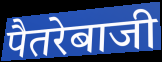
पैतरेबाजी